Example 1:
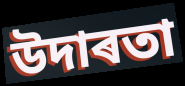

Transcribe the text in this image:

উদাৰতা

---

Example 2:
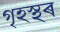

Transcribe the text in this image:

গৃহস্থৰ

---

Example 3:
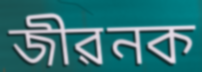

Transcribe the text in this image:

জীৱনক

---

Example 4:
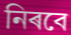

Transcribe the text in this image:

নিৰবে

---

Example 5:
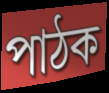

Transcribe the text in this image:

পাঠক